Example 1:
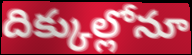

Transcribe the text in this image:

దిక్కుల్లోనూ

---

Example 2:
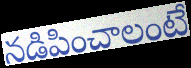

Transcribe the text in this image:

నడిపించాలంటే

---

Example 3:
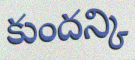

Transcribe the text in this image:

కుందన్కి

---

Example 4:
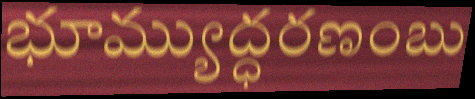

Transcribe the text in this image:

భూమ్యుద్ధరణంబు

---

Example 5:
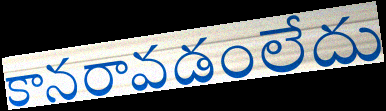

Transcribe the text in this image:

కానరావడంలేదు